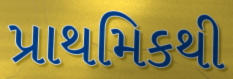
પ્રાથમિકથી